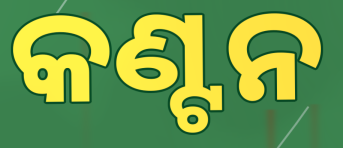
କଣ୍ଟନ